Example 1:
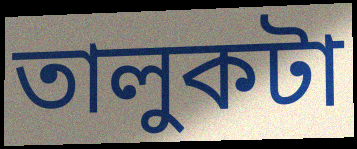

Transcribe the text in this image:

তালুকটা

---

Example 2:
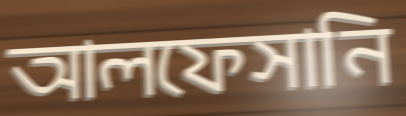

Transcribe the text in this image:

আলফেসানি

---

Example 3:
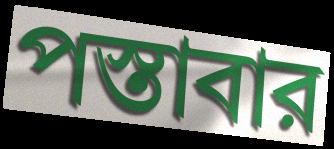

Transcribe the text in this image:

পস্তাবার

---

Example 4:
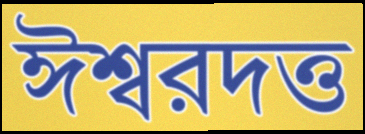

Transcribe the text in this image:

ঈশ্বরদত্ত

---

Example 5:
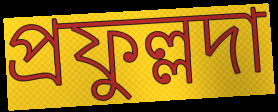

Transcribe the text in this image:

প্রফুল্লদা